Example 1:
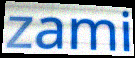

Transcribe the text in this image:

zami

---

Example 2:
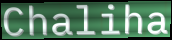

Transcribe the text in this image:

Chaliha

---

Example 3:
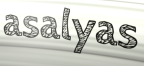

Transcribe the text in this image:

asalyas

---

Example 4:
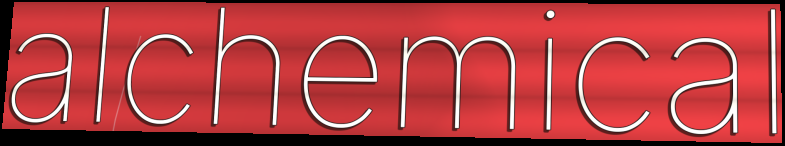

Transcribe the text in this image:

alchemical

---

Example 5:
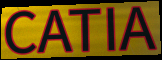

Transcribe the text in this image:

CATIA